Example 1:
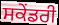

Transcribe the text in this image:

ਸਕੇਂਡਰੀ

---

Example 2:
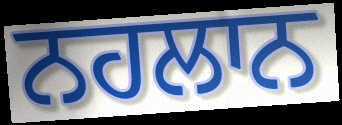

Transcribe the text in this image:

ਨਹਲਾਨ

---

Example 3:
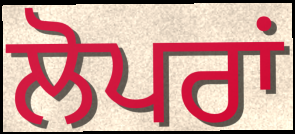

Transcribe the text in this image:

ਲੋਪਰਾਂ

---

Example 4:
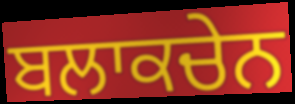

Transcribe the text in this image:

ਬਲਾਕਚੇਨ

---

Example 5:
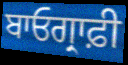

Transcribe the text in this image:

ਬਾਓਗ੍ਰਾਫ਼ੀ